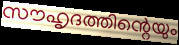
സൗഹൃദത്തിന്റെയും